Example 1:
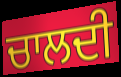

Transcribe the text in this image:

ਚਾਲਦੀ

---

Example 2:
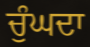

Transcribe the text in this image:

ਚੁੰਘਦਾ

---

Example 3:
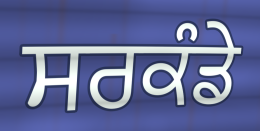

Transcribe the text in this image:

ਸਰਕੰਡੇ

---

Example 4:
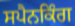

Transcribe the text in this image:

ਸਪੈਨਕਿੰਗ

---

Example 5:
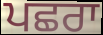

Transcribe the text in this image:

ਪਛਰਾ